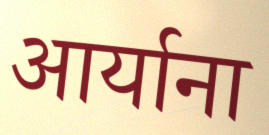
आर्याना